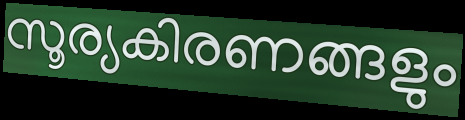
സൂര്യകിരണങ്ങളും